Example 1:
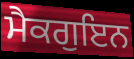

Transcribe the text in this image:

ਮੈਕਗੁਇਨ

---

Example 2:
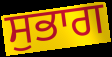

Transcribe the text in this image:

ਸੁਭਾਗ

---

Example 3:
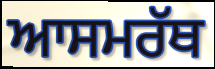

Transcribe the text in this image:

ਆਸਮਰੱਥ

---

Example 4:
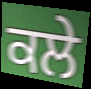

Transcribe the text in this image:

ਕਲੇ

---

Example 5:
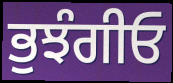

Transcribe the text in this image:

ਭੁਝੰਗੀਓ